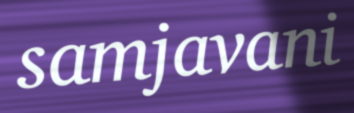
samjavani